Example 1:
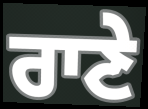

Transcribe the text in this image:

ਰਾਣੇ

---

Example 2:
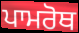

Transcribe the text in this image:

ਪਾਮਰੋਥ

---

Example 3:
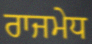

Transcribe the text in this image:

ਰਾਜਮੇਧ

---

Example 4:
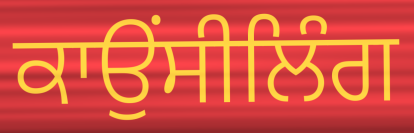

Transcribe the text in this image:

ਕਾਉਂਸੀਲਿੰਗ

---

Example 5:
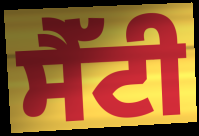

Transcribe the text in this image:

ਸੈੱਟੀ